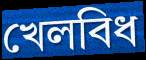
খেলবিধ